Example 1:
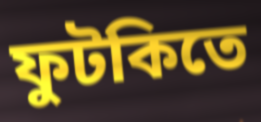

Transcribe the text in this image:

ফুটকিতে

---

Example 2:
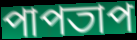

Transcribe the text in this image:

পাপতাপ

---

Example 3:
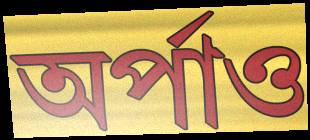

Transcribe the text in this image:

অর্পাও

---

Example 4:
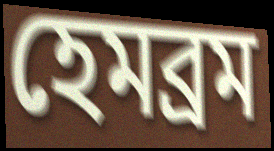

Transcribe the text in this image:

হেমব্রম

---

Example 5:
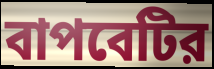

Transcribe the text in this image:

বাপবেটির